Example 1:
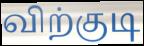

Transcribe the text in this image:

விற்குடி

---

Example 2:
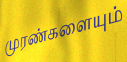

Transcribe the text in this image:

முரண்களையும்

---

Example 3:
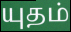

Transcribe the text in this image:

யுதம்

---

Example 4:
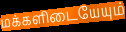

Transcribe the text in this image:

மக்களிடையேயும்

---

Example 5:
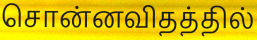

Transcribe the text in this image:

சொன்னவிதத்தில்